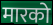
मारको